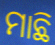
ମାଛି